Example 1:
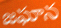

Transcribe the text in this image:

జఘాన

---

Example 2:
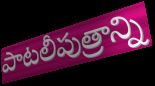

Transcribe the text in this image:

పాటలీపుత్రాన్ని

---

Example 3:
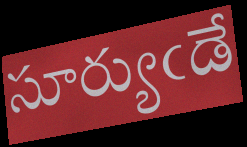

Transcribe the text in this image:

సూర్యుఁడే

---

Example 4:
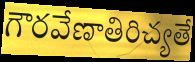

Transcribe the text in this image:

గౌరవేణాతిరిచ్యతే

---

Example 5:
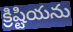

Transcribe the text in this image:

క్రిష్టియను